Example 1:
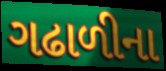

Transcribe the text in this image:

ગઢાળીના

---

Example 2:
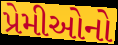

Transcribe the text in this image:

પ્રેમીઓનો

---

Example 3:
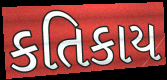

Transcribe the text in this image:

કતિકાય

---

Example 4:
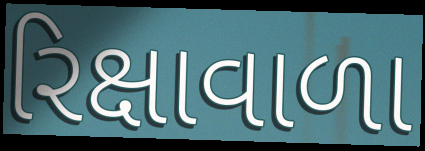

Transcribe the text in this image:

રિક્ષાવાળા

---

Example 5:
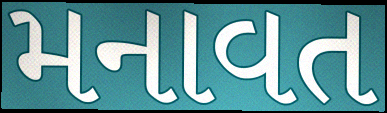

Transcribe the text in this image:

મનાવત